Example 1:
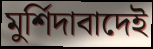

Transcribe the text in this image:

মুর্শিদাবাদেই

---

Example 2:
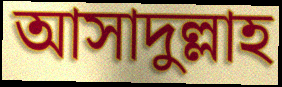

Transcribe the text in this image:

আসাদুল্লাহ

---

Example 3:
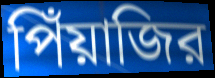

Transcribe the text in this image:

পিঁয়াজির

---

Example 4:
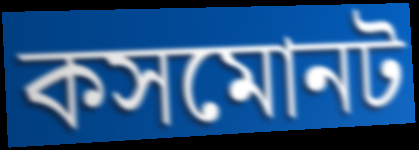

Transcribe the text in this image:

কসমোনট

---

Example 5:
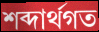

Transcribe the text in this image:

শব্দার্থগত